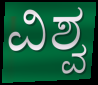
ವಿಶ್ವ